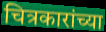
चित्रकारांच्या